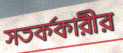
সতর্ককারীর